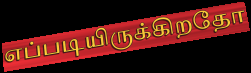
எப்படியிருக்கிறதோ